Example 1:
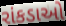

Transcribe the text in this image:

રાંકડાઓ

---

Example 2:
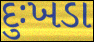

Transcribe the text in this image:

દુઃખડા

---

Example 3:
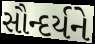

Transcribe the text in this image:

સૌન્દર્યને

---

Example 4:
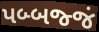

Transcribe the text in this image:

પબ્બજ્જં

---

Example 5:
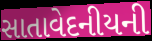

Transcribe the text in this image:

સાતાવેદનીયની